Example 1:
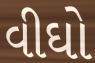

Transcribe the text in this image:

વીઘો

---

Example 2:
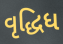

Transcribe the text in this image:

વૃદ્ધિધ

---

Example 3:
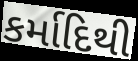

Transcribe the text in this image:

કર્માદિથી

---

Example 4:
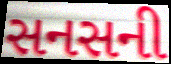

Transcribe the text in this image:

સનસની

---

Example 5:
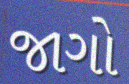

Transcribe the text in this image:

જાગો